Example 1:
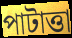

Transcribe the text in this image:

পাটাত্তা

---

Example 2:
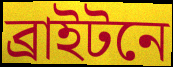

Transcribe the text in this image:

ব্রাইটনে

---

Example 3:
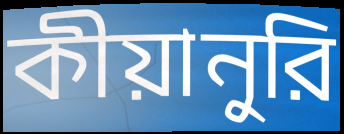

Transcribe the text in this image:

কীয়ানুরি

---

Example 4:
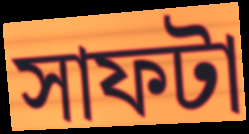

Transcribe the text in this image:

সাফটা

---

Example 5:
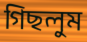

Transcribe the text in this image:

গিছলুম